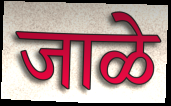
जाळे